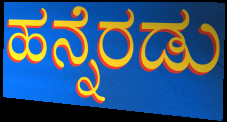
ಹನ್ನೆರಡು